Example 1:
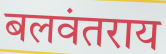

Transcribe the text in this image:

बलवंतराय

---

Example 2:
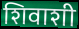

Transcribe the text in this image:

शिवाशी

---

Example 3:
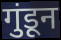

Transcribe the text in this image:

गुंडून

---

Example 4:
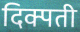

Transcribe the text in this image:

दिक्पती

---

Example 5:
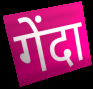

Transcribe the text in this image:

गेंदा